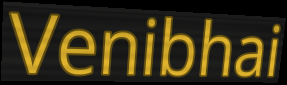
Venibhai